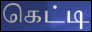
கெட்டி